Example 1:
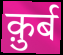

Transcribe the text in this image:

क़ुर्ब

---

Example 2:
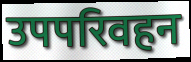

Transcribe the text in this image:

उपपरिवहन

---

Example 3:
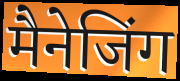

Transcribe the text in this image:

मैनेजिंग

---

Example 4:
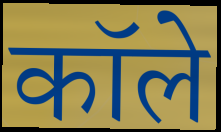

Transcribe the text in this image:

कॉले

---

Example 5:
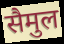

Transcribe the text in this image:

सैमुल